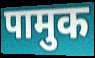
पामुक